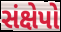
સંક્ષેપો